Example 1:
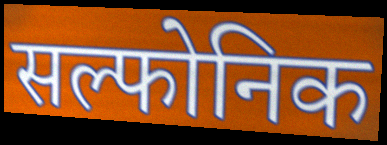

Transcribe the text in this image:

सल्फोनिक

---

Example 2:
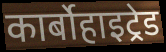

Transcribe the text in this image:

कार्बोहाइट्रेड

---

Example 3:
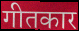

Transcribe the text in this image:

गीतकार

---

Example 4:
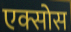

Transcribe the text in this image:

एक्सोस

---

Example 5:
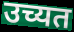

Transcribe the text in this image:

उच्यत